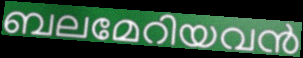
ബലമേറിയവൻ